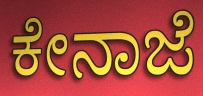
ಕೇನಾಜೆ